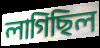
লাগিছিল